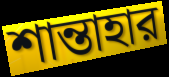
শান্তাহার